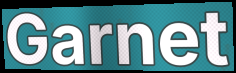
Garnet